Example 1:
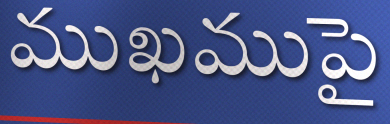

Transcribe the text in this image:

ముఖముపై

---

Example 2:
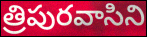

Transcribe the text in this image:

త్రిపురవాసిని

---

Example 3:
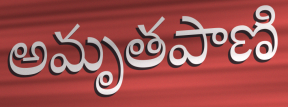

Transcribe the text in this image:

అమృతపాణి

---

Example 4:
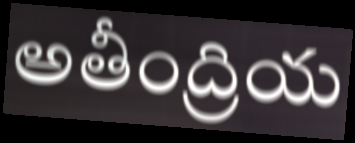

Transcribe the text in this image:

అతీంద్రియ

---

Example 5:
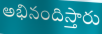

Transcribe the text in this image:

అభినందిస్తారు